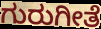
ಗುರುಗೀತೆ